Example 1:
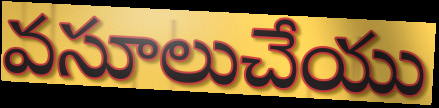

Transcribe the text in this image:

వసూలుచేయు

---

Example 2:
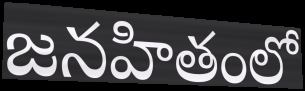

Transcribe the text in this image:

జనహితంలో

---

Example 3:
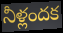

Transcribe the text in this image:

నీళ్లందక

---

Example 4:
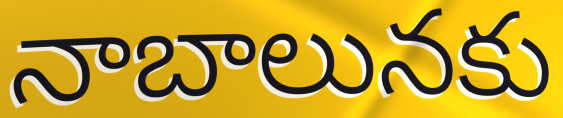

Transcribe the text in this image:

నాబాలునకు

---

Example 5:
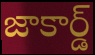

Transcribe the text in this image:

జాకార్డ్